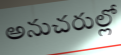
అనుచరుల్లో